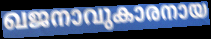
ഖജനാവുകാരനായ